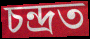
চন্দ্ৰত